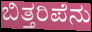
ಬಿತ್ತರಿಪೆನು